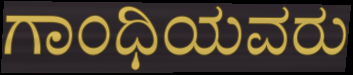
ಗಾಂಧಿಯವರು